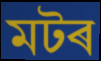
মটৰ